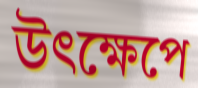
উৎক্ষেপে